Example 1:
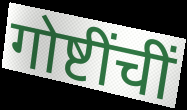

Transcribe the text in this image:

गोष्टींचीं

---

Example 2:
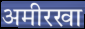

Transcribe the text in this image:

अमीरखा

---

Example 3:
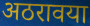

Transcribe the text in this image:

अठरावया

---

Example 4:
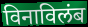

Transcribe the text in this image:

विनाविलंब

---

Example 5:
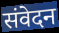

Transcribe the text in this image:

संवेदन